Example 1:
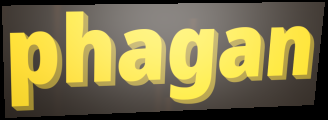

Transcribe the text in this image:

phagan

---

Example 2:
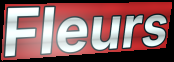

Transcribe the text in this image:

Fleurs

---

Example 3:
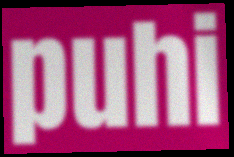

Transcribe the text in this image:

puhi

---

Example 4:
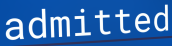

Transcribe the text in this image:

admitted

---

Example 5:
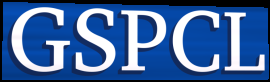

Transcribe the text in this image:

GSPCL